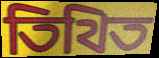
তিথিত